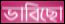
ভাবিছো